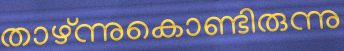
താഴ്ന്നുകൊണ്ടിരുന്നു